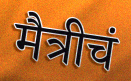
मैत्रीचं